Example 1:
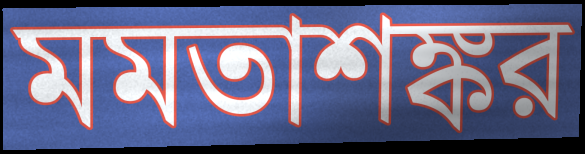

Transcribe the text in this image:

মমতাশঙ্কর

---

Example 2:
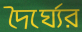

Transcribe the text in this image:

দৈর্ঘ্যের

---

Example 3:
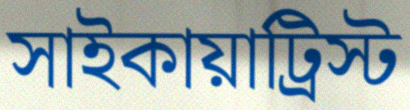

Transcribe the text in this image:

সাইকায়াট্রিস্ট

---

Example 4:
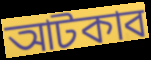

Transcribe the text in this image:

আটকাব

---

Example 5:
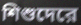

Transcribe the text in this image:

শিশুদেরে